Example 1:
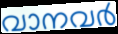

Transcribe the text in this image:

വാനവർ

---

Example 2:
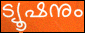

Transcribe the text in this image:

ട്യൂഷനും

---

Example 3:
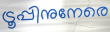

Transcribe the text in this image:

ട്രൂപ്പിനുനേരെ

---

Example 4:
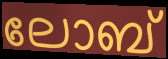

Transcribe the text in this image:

ലോബ്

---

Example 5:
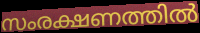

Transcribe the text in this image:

സംരക്ഷണത്തിൽ